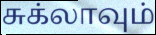
சுக்லாவும்